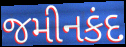
જમીનકંદ